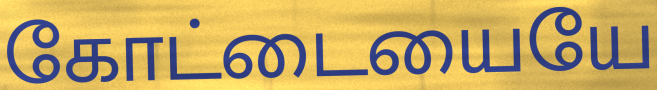
கோட்டையையே